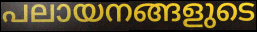
പലായനങ്ങളുടെ